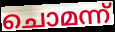
ചൊമന്ന്